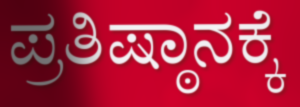
ಪ್ರತಿಷ್ಠಾನಕ್ಕೆ